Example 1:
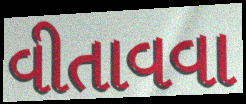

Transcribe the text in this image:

વીતાવવા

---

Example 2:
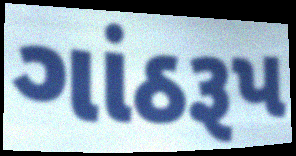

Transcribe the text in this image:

ગાંઠરૂપ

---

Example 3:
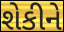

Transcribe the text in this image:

શેકીને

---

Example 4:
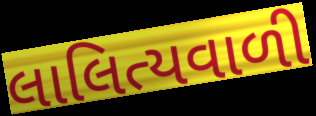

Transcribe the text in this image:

લાલિત્યવાળી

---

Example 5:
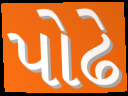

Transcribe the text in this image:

પોઢે